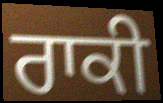
ਰਾਕੀ